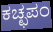
ಕಚ್ಛಪಂ